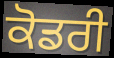
ਕੋਡਰੀ